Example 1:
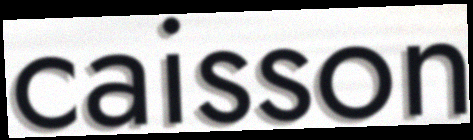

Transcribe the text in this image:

caisson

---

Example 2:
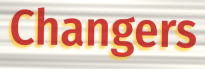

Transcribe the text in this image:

Changers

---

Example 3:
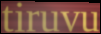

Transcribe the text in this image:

tiruvu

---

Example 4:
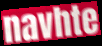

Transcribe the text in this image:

navhte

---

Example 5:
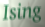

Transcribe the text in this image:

Ising